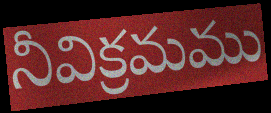
నీవిక్రమము